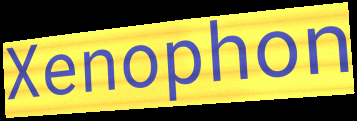
Xenophon